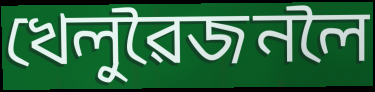
খেলুৱৈজনলৈ